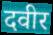
दवीर